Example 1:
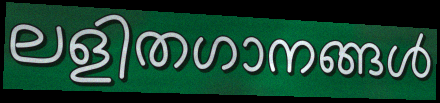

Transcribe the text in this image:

ലളിതഗാനങ്ങൾ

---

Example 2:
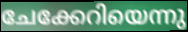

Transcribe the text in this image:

ചേക്കേറിയെന്നു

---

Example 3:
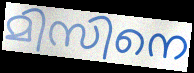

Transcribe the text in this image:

മിസിനെ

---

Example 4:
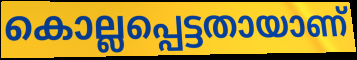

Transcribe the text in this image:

കൊല്ലപ്പെട്ടതായാണ്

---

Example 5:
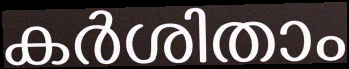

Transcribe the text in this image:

കർശിതാം